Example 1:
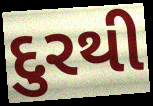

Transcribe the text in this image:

દુરથી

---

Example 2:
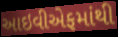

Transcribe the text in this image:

આઇવીએફમાંથી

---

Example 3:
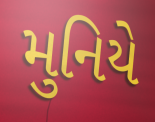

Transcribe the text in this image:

મુનિયે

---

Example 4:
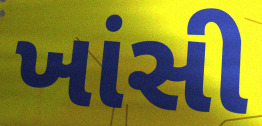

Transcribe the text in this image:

ખાંસી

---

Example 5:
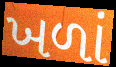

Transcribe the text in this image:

ખળાં